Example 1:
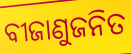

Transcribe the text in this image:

ବୀଜାଣୁଜନିତ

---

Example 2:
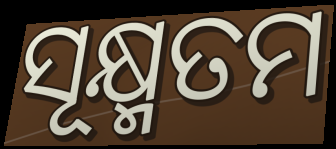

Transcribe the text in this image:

ସୂକ୍ଷ୍ମତମ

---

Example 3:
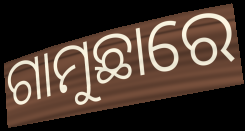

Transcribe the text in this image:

ଗାମୁଛାରେ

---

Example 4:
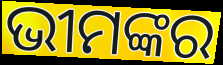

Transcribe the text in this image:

ଭୀମଙ୍କର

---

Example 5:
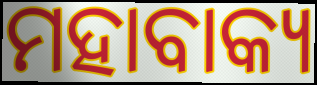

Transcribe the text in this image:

ମହାବାକ୍ୟ